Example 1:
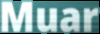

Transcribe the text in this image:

Muar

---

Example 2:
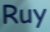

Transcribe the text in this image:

Ruy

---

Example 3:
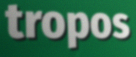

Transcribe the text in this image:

tropos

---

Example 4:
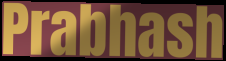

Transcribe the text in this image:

Prabhash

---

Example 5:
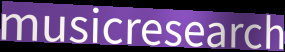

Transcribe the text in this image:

musicresearch